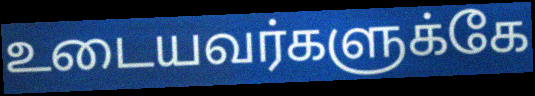
உடையவர்களுக்கே